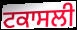
ਟਕਾਸਲੀ